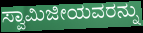
ಸ್ವಾಮಿಜೀಯವರನ್ನು